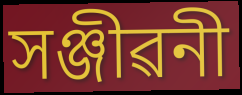
সঞ্জীৱনী